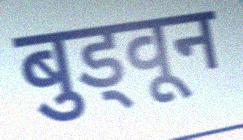
बुड्वून